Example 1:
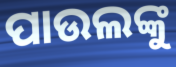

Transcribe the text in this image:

ପାଉଲଙ୍କୁ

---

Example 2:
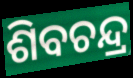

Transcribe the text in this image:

ଶିବଚନ୍ଦ୍ର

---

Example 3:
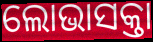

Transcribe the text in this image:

ଲୋଭାସକ୍ତା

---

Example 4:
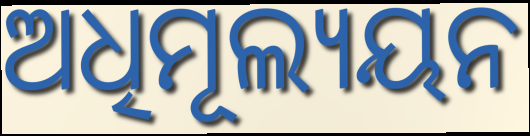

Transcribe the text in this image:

ଅଧିମୂଲ୍ୟୟନ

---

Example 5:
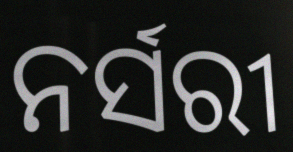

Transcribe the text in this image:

ନର୍ସରୀ